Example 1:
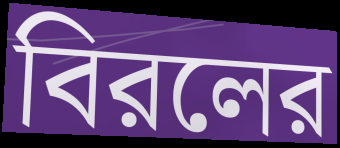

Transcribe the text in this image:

বিরলের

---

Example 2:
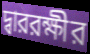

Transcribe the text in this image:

দ্বাররক্ষীর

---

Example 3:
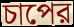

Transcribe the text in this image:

চাপের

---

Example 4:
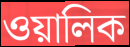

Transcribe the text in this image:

ওয়ালিক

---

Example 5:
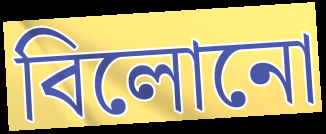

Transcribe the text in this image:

বিলোনো